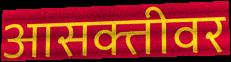
आसक्तीवर